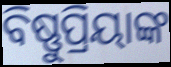
ବିଷ୍ଣୁପ୍ରିୟାଙ୍କ